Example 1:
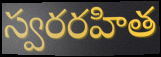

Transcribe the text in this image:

స్వరరహిత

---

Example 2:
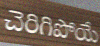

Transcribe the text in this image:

చెరిగిపోయే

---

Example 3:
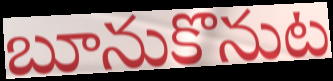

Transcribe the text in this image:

బూనుకొనుట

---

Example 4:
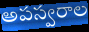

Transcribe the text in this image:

అపస్వరాల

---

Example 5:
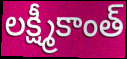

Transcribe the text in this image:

లక్ష్మీకాంత్